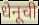
धेनूची